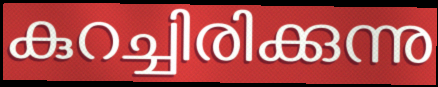
കുറച്ചിരിക്കുന്നു